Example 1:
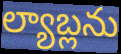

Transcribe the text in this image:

ల్యాబ్లను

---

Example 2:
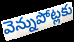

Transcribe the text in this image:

వెన్నుపోట్లకు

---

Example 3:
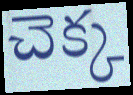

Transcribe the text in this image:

చెక్క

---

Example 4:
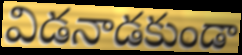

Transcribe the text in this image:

విడనాడకుండా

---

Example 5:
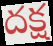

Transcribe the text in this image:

దక్ష